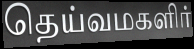
தெய்வமகளிர்